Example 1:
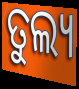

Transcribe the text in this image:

ତୁଲ୍ୟ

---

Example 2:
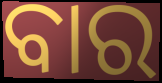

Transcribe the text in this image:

ବାର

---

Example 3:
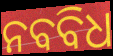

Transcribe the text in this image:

ନବବିଧ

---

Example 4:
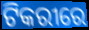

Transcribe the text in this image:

ଟିକରୀରେ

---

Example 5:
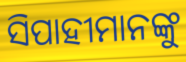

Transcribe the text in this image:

ସିପାହୀମାନଙ୍କୁ